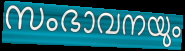
സംഭാവനയും